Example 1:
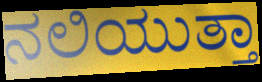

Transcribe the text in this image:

ನಲಿಯುತ್ತಾ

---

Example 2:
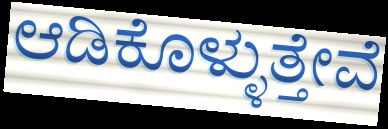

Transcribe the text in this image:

ಆಡಿಕೊಳ್ಳುತ್ತೇವೆ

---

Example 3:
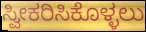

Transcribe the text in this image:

ಸ್ವೀಕರಿಸಿಕೊಳ್ಳಲು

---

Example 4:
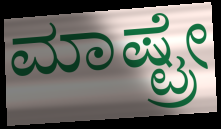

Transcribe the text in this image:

ಮಾಷ್ಟ್ರೇ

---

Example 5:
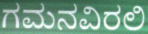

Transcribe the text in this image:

ಗಮನವಿರಲಿ